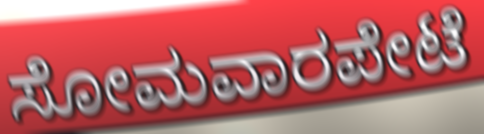
ಸೋಮವಾರಪೇಟೆ